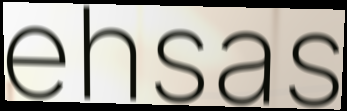
ehsas